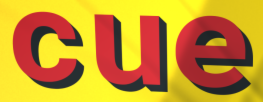
cue